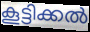
കൂട്ടിക്കൽ